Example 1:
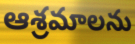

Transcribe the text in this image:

ఆశ్రమాలను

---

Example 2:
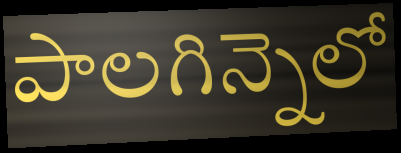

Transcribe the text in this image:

పాలగిన్నెలో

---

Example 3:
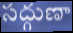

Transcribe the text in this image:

సద్గుణా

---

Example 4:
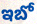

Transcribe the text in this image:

ఇబో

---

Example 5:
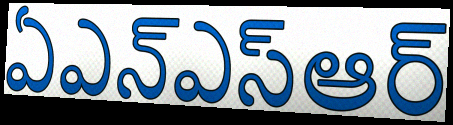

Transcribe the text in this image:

ఏఎన్ఎస్ఆర్